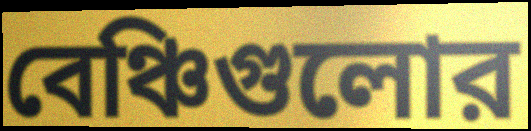
বেঞ্চিগুলোর